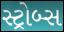
સ્ટ્રોબ્સ